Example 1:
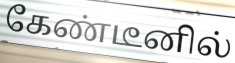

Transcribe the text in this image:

கேண்டீனில்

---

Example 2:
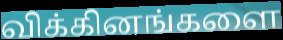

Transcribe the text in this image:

விக்கினங்களை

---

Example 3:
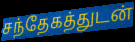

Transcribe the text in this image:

சந்தேகத்துடன்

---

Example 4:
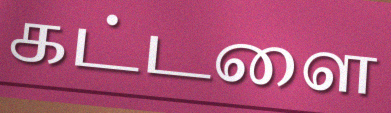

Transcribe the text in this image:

கட்டளை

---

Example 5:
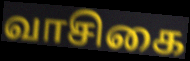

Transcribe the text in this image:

வாசிகை